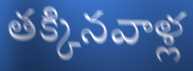
తక్కినవాళ్ల